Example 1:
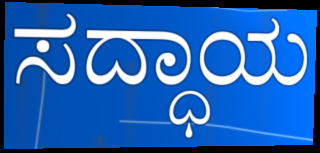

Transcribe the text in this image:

ಸದ್ಧಾಯ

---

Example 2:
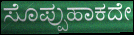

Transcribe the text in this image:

ಸೊಪ್ಪುಹಾಕದೇ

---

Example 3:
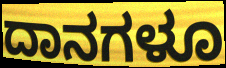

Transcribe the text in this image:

ದಾನಗಳೂ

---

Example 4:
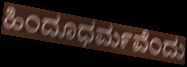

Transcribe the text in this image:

ಹಿಂದೂಧರ್ಮವೆಂದು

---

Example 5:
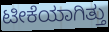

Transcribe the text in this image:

ಟೀಕೆಯಾಗಿತ್ತು